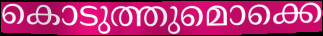
കൊടുത്തുമൊക്കെ